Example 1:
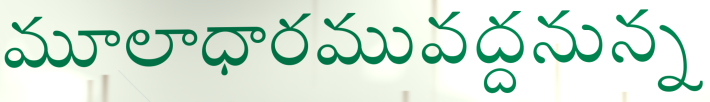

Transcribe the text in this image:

మూలాధారమువద్దనున్న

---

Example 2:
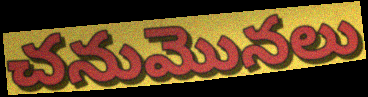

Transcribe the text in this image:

చనుమొనలు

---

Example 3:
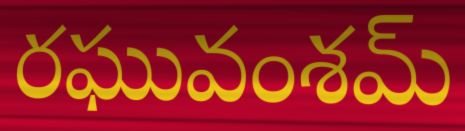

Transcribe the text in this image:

రఘువంశమ్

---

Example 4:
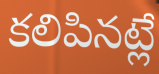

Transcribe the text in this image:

కలిపినట్లే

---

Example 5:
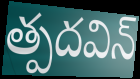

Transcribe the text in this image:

త్పదవిన్